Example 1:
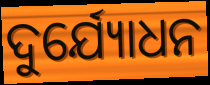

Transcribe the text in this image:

ଦୁର୍ଯ୍ୟୋଧନ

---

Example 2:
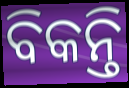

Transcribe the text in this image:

ବିକନ୍ତି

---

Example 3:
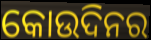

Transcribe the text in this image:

କୋଉଦିନର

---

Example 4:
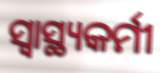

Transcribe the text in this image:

ସ୍ୱାସ୍ଥ୍ୟକର୍ମୀ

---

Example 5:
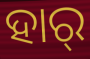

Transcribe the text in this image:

ହାର୍